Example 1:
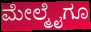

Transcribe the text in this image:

ಮೇಲ್ಮೈಗೂ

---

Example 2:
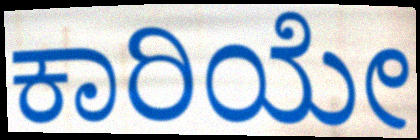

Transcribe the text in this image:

ಕಾರಿಯೇ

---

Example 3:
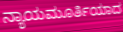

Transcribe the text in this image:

ನ್ಯಾಯಮೂರ್ತಿಯಾದ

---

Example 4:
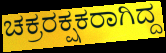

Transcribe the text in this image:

ಚಕ್ರರಕ್ಷಕರಾಗಿದ್ದ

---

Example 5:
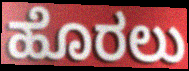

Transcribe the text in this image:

ಹೊರಲು